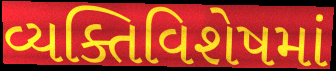
વ્યક્તિવિશેષમાં